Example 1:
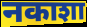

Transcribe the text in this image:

नकाशा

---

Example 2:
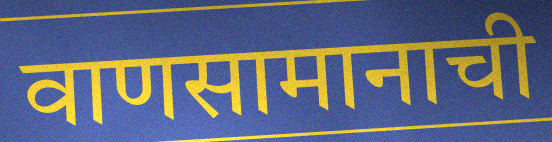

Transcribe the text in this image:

वाणसामानाची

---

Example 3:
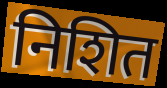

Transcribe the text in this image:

निशित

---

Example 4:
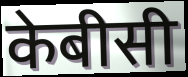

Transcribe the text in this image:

केबीसी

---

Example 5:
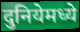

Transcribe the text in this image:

दुनियेमध्ये